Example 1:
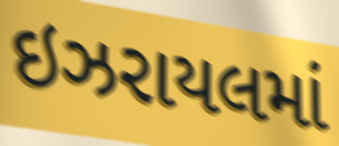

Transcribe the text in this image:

ઇઝરાયલમાં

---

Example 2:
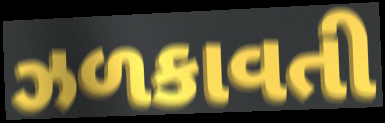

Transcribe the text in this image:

ઝળકાવતી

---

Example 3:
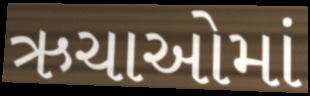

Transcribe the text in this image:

ઋચાઓમાં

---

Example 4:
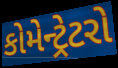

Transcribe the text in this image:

કોમેન્ટ્રેટરો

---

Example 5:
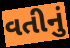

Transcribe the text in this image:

વતીનું